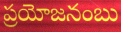
ప్రయోజనంబు